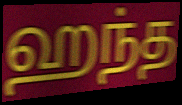
ஹந்த